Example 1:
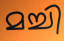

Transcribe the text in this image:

മച്ചി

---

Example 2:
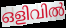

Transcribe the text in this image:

ഒളിവിൽ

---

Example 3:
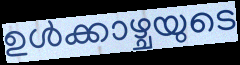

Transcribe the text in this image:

ഉൾക്കാഴ്ചയുടെ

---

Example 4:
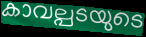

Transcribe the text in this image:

കാവല്പടയുടെ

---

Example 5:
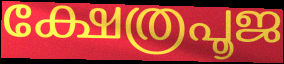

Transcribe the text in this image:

ക്ഷേത്രപൂജ